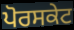
ਪੋਰਸਕੇਟ